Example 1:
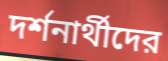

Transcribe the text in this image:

দর্শনার্থীদের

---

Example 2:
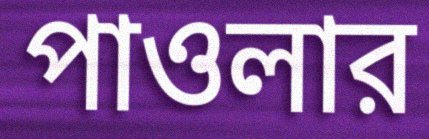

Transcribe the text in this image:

পাওলার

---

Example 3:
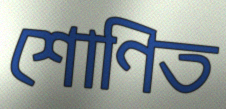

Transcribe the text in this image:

শোণিত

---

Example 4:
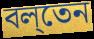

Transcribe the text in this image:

বল্‌তেন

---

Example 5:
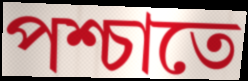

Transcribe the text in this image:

পশ্চাতে